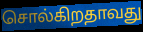
சொல்கிறதாவது